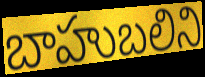
బాహుబలిని